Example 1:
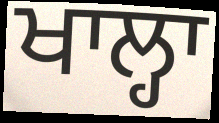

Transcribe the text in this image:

ਖਾਲ੍ਹਾ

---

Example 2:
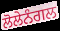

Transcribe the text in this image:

ਲੋਲੇਨੰਗਲ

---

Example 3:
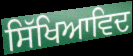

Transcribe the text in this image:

ਸਿੱਖਿਆਵਿਦ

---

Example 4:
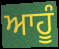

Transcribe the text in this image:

ਆਹੂੰ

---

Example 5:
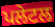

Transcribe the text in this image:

ਪਲੇਟਲ